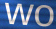
wo